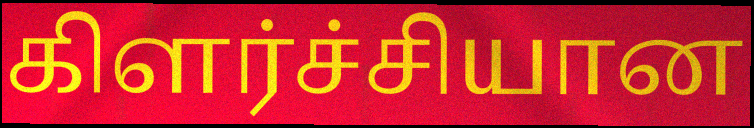
கிளர்ச்சியான